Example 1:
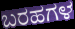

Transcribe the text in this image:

ಬರಹಗಳ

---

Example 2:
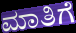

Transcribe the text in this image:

ಮಾತಿಗೆ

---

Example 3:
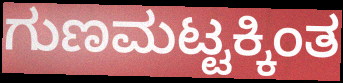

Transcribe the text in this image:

ಗುಣಮಟ್ಟಕ್ಕಿಂತ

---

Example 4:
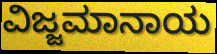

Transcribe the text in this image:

ವಿಜ್ಜಮಾನಾಯ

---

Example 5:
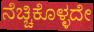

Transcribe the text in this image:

ನೆಚ್ಚಿಕೊಳ್ಳದೇ